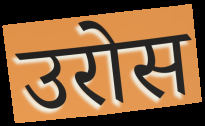
उरोस